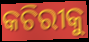
କଚିରୀକୁ